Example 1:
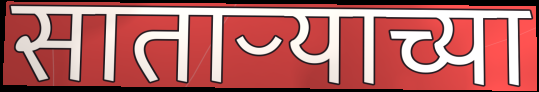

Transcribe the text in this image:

साताऱ्याच्या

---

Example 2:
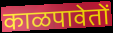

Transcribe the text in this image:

काळपावेतों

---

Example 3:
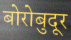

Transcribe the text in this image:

बोरोबुदूर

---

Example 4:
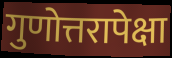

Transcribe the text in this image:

गुणोत्तरापेक्षा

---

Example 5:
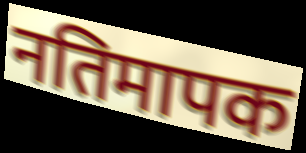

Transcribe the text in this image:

नतिमापक